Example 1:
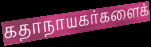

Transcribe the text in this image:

கதாநாயகர்களைக்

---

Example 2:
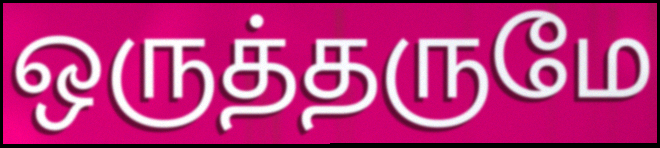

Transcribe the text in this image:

ஒருத்தருமே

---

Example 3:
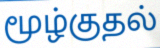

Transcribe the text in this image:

மூழ்குதல்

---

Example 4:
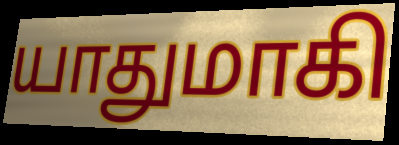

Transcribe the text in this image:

யாதுமாகி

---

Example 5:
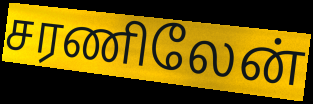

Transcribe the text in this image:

சரணிலேன்